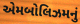
એમબોલિઝમનું